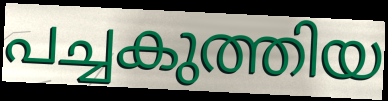
പച്ചകുത്തിയ